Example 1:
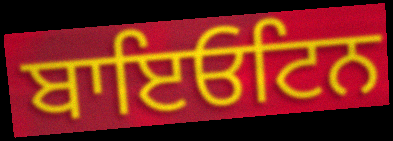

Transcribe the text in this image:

ਬਾਇਓਟਿਨ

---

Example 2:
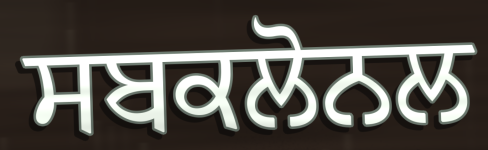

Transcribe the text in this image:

ਸਬਕਲੋਨਲ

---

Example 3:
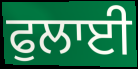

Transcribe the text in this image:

ਫੁਲਾਈ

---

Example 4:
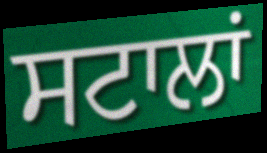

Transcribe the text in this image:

ਸਟਾਲਾਂ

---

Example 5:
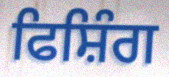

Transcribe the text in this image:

ਫਿਸ਼ਿੰਗ